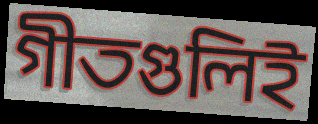
গীতগুলিই